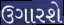
ઉગારશે